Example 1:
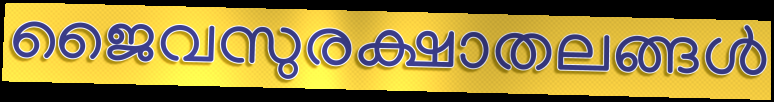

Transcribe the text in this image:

ജൈവസുരക്ഷാതലങ്ങൾ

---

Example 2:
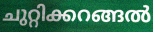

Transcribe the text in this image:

ചുറ്റിക്കറങ്ങൽ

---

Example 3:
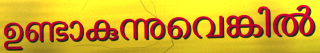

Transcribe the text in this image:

ഉണ്ടാകുന്നുവെങ്കിൽ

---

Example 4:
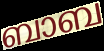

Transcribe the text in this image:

ബാബ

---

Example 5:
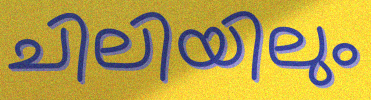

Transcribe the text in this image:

ചിലിയിലും